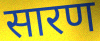
सारण